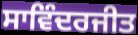
ਸਾਵਿੰਦਰਜੀਤ